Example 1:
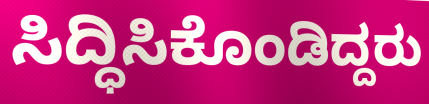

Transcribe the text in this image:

ಸಿದ್ಧಿಸಿಕೊಂಡಿದ್ದರು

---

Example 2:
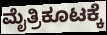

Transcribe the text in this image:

ಮೈತ್ರಿಕೂಟಕ್ಕೆ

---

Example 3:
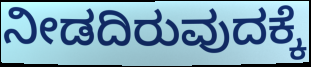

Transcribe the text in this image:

ನೀಡದಿರುವುದಕ್ಕೆ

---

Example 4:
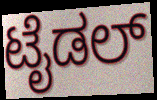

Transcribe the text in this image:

ಟೈಡಲ್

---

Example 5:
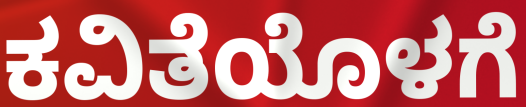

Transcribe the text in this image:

ಕವಿತೆಯೊಳಗೆ